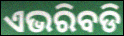
ଏଭରିବଡି